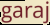
garaj